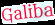
Galiba